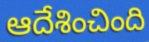
ఆదేశించింది